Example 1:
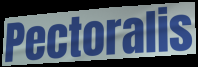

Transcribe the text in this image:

Pectoralis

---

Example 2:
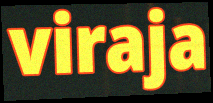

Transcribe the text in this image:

viraja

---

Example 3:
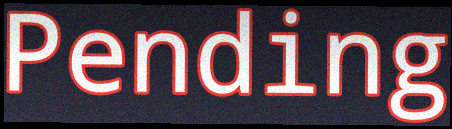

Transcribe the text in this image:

Pending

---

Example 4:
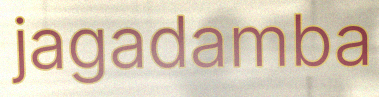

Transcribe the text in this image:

jagadamba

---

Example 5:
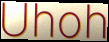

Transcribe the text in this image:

Uhoh